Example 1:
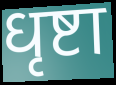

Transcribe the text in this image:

धृष्टा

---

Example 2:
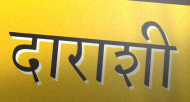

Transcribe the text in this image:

दाराशी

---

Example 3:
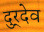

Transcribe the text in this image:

दुर्देव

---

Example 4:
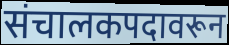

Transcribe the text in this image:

संचालकपदावरून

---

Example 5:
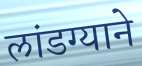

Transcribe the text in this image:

लांडग्याने